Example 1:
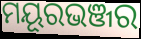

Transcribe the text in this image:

ମୟୂରଭଞ୍ଜର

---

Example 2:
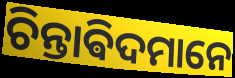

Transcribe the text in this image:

ଚିନ୍ତାଵିଦମାନେ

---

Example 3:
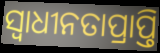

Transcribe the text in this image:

ସ୍ୱାଧୀନତାପ୍ରାପ୍ତି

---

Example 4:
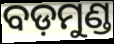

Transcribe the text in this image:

ବଡ଼ମୁଣ୍ଡ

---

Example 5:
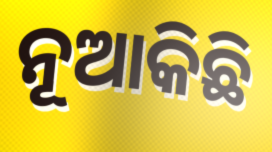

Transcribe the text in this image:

ନୂଆକିଛି